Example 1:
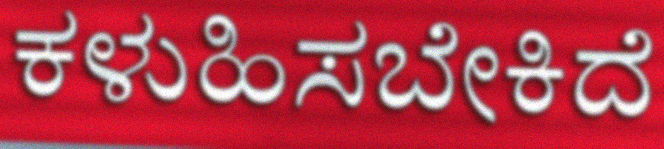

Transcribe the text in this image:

ಕಳುಹಿಸಬೇಕಿದೆ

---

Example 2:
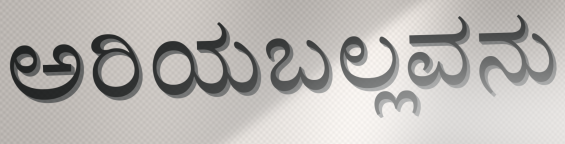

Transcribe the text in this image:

ಅರಿಯಬಲ್ಲವನು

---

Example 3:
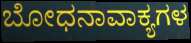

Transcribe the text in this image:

ಬೋಧನಾವಾಕ್ಯಗಳ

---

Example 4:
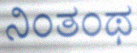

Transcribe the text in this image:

ನಿಂತಂಥ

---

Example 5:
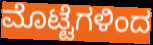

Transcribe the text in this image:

ಮೊಟ್ಟೆಗಳಿಂದ